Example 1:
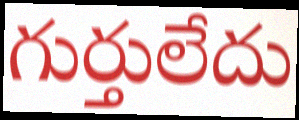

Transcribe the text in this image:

గుర్తులేదు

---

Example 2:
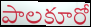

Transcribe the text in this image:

పాలకూరో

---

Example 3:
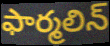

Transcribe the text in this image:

ఫార్మలిన్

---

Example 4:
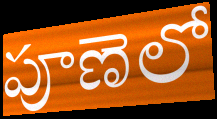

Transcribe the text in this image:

పూణెలో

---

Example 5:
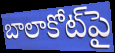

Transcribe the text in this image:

బాలాకోట్‌పై